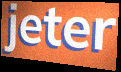
jeter